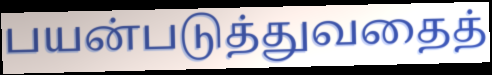
பயன்படுத்துவதைத்